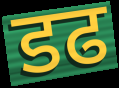
डढ